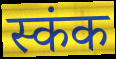
स्कंक